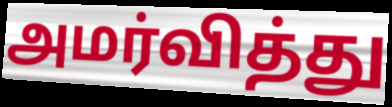
அமர்வித்து